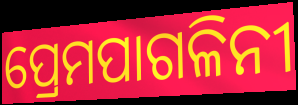
ପ୍ରେମପାଗଳିନୀ